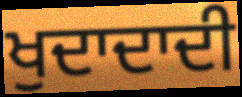
ਖੁਦਾਦਾਦੀ